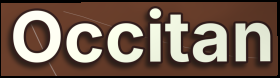
Occitan